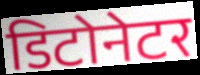
डिटोनेटर